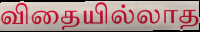
விதையில்லாத